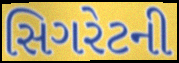
સિગરેટની